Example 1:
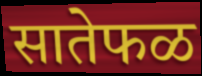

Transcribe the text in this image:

सातेफळ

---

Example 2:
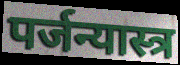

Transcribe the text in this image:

पर्जन्यास्त्र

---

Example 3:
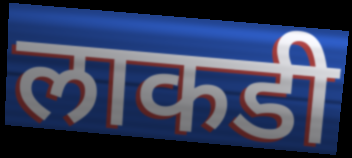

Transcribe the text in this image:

लाकडी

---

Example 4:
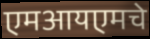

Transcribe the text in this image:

एमआयएमचे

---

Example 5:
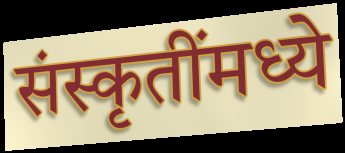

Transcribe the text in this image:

संस्कृतींमध्ये